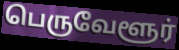
பெருவேளூர்